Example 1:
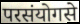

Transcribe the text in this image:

परसंयोगसे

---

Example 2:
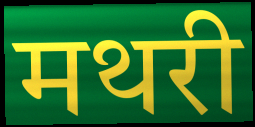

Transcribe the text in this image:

मथरी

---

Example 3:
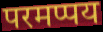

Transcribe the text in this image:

परमप्पय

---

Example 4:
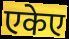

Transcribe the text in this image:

एकेए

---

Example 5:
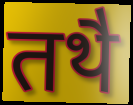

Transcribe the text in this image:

तथै